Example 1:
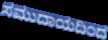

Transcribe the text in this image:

ಸಮುದಾಯದಿಂದ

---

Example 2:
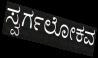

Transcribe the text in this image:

ಸ್ವರ್ಗಲೋಕವ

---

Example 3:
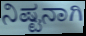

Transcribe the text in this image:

ನಿಷ್ಟನಾಗಿ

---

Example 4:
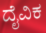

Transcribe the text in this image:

ದೈವಿಕ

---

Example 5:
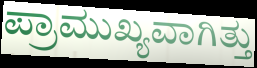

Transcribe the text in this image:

ಪ್ರಾಮುಖ್ಯವಾಗಿತ್ತು